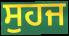
ਸੁਹਜ